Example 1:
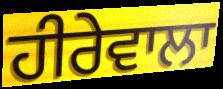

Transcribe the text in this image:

ਹੀਰੇਵਾਲਾ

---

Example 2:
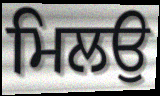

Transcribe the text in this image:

ਮਿਲਉ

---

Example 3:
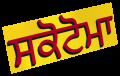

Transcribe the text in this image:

ਸਕੋਟੋਮਾ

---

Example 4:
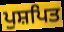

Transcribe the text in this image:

ਪੁਸ਼ਪਿਤ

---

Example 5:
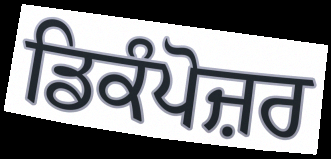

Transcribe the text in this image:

ਡਿਕੰਪੋਜ਼ਰ